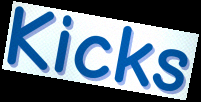
Kicks